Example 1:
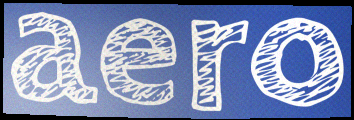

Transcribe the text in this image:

aero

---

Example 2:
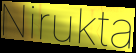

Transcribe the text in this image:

Nirukta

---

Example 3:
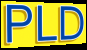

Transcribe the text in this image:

PLD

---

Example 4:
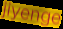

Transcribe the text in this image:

jiyenge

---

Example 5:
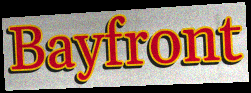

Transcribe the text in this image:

Bayfront